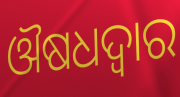
ଔଷଧଦ୍ୱାର